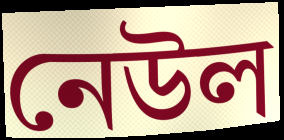
নেউল